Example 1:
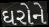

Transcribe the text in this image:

ઘરોને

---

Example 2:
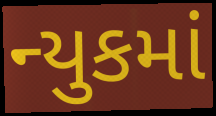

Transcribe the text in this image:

ન્યુકમાં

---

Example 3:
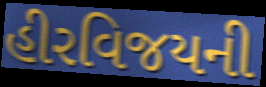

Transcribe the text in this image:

હીરવિજયની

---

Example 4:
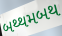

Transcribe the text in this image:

બથ્થમબથ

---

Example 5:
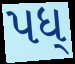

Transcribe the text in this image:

પધ્